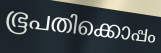
ഭൂപതിക്കൊപ്പം